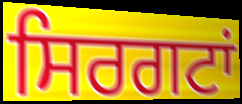
ਸਿਰਗਟਾਂ